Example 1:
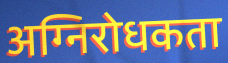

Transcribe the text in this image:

अग्निरोधकता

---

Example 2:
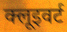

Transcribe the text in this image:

क्लूइवर्ट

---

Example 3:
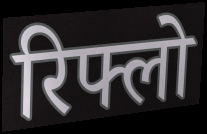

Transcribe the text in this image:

रिफ्लो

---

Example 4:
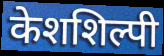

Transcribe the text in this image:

केशशिल्पी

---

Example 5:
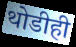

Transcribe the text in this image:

थोडीही